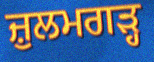
ਜ਼ੁਲਮਗੜ੍ਹ